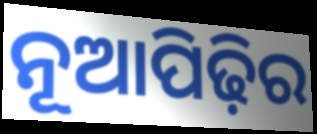
ନୂଆପିଢ଼ିର